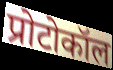
प्रोटोकॉल